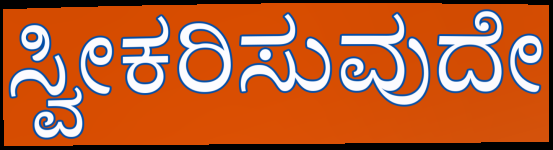
ಸ್ವೀಕರಿಸುವುದೇ